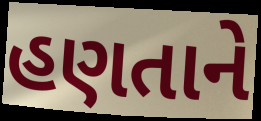
હણતાને